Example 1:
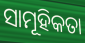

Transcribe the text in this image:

ସାମୂହିକତା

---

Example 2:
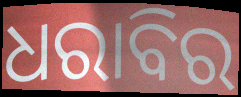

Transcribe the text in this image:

ଧରାବିର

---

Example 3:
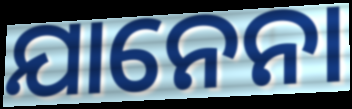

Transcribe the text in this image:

ଯାନେନା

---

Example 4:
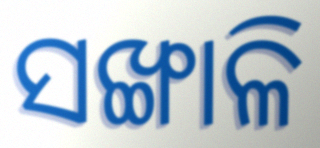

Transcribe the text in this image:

ସଙ୍ଖାଳି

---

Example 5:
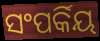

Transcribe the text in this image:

ସଂପର୍କିୟ